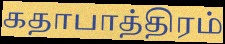
கதாபாத்திரம்